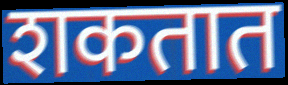
शकतात